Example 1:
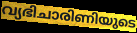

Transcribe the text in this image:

വ്യഭിചാരിണിയുടെ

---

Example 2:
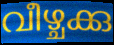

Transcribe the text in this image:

വീഴ്ചക്കു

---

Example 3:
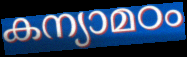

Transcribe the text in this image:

കന്യാമഠം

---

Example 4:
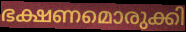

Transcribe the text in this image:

ഭക്ഷണമൊരുക്കി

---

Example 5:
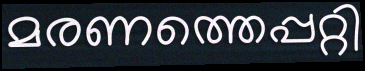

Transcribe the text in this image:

മരണത്തെപ്പറ്റി